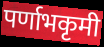
पर्णाभकृमी